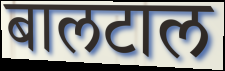
बालटाल